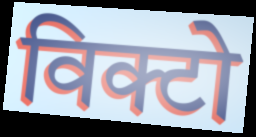
विक्टो